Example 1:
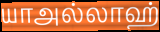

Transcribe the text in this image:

யாஅல்லாஹ்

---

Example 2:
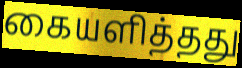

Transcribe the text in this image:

கையளித்தது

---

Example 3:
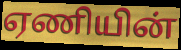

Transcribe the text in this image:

ஏணியின்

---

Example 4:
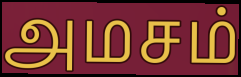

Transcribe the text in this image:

அமசம்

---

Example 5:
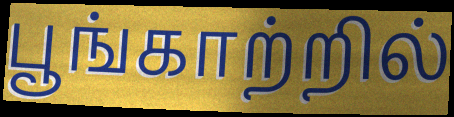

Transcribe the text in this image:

பூங்காற்றில்